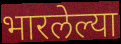
भारलेल्या